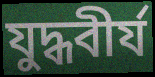
যুদ্ধবীর্য